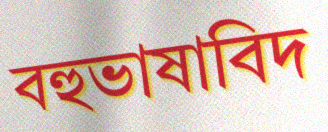
বহুভাষাবিদ